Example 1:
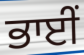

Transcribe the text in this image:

ਭਾਈੰ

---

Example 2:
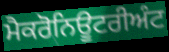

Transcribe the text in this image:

ਮੈਕਰੋਨਿਊਟਰੀਅੰਟ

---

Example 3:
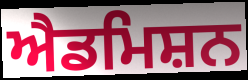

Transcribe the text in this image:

ਐਡਮਿਸ਼ਨ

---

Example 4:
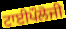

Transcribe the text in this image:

ਟਾਈਪੌਲੋਜੀ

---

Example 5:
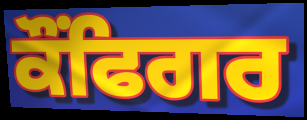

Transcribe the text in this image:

ਕੌਂਫਿਗਰ